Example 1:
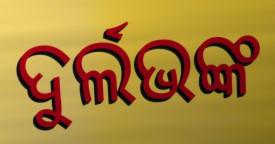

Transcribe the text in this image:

ଦୁର୍ଲଭଙ୍କ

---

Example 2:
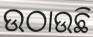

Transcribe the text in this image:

ଉଠାଉଛି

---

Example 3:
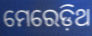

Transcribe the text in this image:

ମେରେଡ଼ିଥ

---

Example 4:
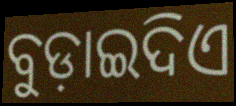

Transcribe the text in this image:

ବୁଡ଼ାଇଦିଏ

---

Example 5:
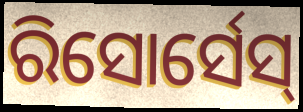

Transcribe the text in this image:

ରିସୋର୍ସେସ୍